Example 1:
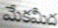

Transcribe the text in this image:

మేకమీద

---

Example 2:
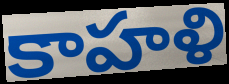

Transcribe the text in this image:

కాహళి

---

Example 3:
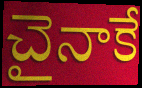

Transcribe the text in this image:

చైనాకే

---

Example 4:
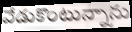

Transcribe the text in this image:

వేడుకొంటున్నాను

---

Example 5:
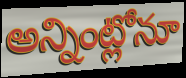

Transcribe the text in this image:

అన్నింట్లోనూ